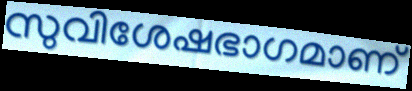
സുവിശേഷഭാഗമാണ്